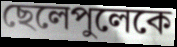
ছেলেপুলেকে